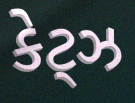
કેટ્ઝ